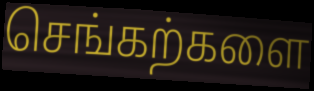
செங்கற்களை